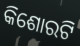
କିଶୋରଟି